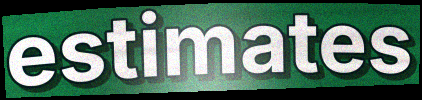
estimates